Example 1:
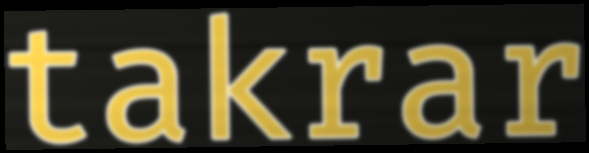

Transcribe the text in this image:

takrar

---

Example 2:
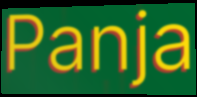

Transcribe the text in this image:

Panja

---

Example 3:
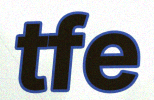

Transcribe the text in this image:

tfe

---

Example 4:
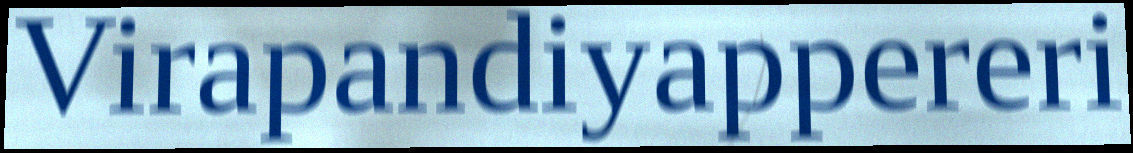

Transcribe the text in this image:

Virapandiyappereri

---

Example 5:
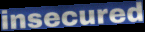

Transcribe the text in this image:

insecured